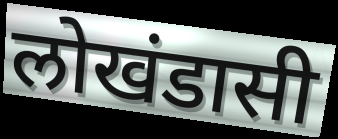
लोखंडासी